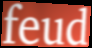
feud